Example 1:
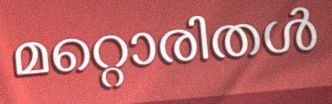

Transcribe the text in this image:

മറ്റൊരിതൾ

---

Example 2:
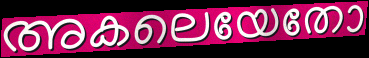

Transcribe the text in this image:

അകലെയേതോ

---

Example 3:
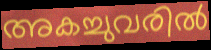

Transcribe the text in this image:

അകച്ചുവരിൽ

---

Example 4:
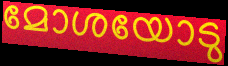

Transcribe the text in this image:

മോശയോടു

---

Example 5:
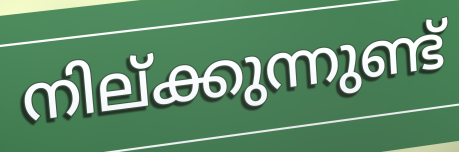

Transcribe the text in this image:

നില്ക്കുന്നുണ്ട്